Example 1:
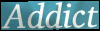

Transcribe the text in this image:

Addict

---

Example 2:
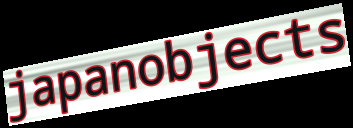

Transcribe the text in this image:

japanobjects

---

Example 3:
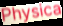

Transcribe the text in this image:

Physica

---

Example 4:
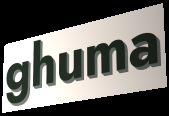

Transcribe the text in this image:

ghuma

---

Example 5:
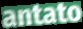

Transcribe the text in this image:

antato